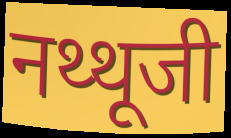
नथ्थूजी